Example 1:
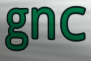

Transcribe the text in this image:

gnc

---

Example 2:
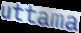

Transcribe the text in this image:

uttama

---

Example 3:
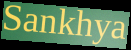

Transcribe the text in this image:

Sankhya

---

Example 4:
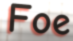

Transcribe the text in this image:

Foe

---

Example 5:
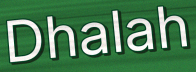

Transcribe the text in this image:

Dhalah